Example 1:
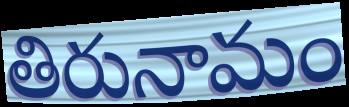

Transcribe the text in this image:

తిరునామం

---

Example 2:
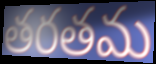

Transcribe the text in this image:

తరతమ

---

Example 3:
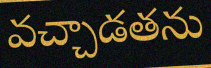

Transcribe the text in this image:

వచ్చాడతను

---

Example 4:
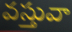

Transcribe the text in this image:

వస్తువా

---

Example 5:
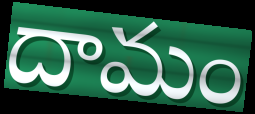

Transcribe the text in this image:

దామం